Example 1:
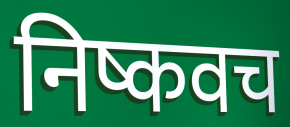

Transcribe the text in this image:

निष्कवच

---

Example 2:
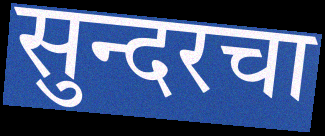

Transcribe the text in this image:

सुन्दरचा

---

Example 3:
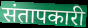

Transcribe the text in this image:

संतापकारी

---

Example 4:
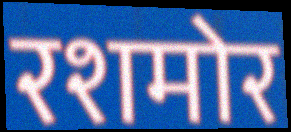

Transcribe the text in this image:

रशमोर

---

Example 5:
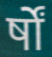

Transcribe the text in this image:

र्षों